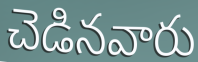
చెడినవారు